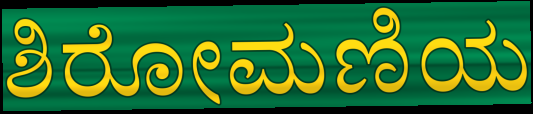
ಶಿರೋಮಣಿಯ